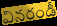
వినరండీ